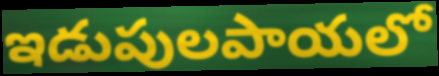
ఇడుపులపాయలో